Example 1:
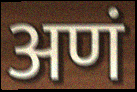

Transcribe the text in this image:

अणं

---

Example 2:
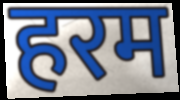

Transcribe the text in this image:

हरम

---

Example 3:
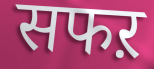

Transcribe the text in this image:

सफऱ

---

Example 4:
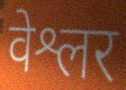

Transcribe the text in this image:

वेश्लर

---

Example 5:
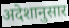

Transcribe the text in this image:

अदेशानुसार